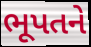
ભૂપતને